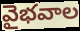
వైభవాల